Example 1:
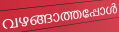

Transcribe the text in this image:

വഴങ്ങാത്തപ്പോൾ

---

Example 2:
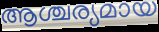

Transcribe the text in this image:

ആശ്ചര്യമായ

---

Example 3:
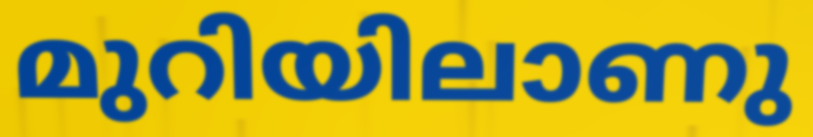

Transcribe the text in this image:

മുറിയിലാണു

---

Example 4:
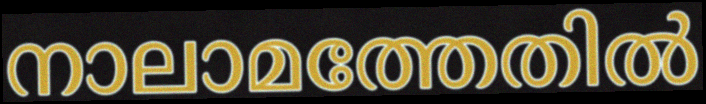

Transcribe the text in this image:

നാലാമത്തേതിൽ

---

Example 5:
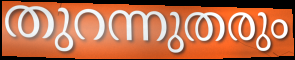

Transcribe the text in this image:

തുറന്നുതരും